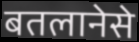
बतलानेसे